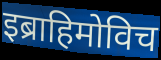
इब्राहिमोविच